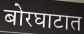
बोरघाटात